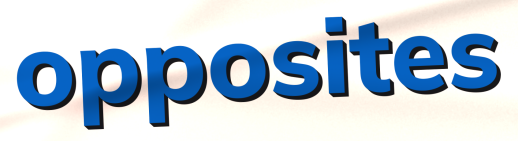
opposites